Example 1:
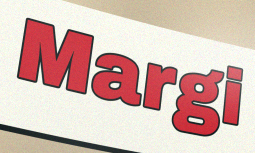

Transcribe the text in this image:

Margi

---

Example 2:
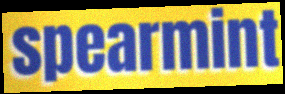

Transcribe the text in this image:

spearmint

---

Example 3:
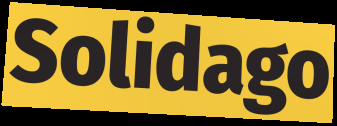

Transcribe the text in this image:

Solidago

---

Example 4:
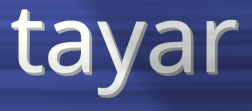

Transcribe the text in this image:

tayar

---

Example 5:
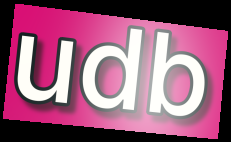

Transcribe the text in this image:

udb